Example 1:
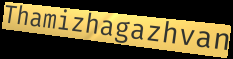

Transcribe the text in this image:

Thamizhagazhvan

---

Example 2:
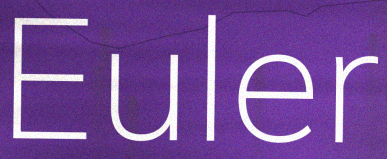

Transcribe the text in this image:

Euler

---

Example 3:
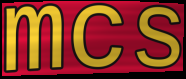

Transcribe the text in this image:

mcs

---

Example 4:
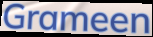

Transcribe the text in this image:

Grameen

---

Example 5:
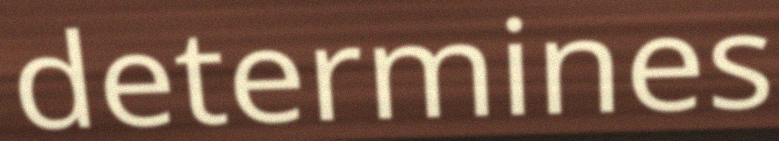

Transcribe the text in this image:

determines